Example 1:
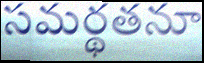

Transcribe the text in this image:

సమర్థతనూ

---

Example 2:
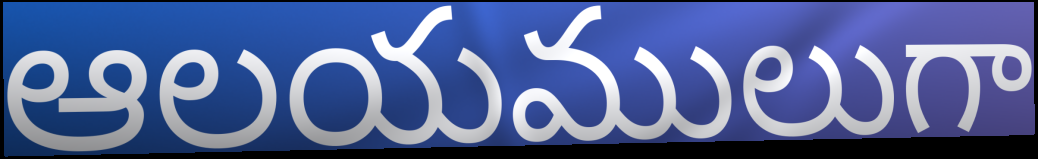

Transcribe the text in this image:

ఆలయములుగా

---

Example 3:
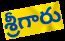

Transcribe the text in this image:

శ్రీగారు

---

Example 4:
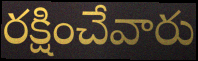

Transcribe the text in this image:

రక్షించేవారు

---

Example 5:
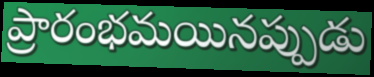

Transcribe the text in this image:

ప్రారంభమయినప్పుడు